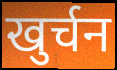
खुर्चन